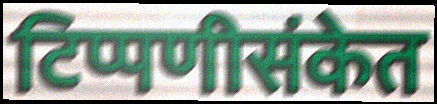
टिप्पणीसंकेत